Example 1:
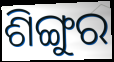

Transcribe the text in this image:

ଶିଙ୍ଗୁର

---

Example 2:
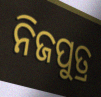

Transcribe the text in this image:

ନିଜପୁତ୍ର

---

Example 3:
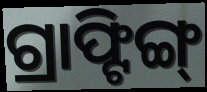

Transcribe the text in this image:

ଗ୍ରାଫ୍ଟିଙ୍ଗ୍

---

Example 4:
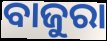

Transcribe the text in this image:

ବାଜୁରା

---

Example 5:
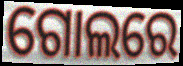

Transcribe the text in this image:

ଗୋଲରେ